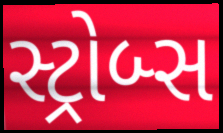
સ્ટ્રોબ્સ